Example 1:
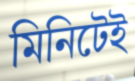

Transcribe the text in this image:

মিনিটেই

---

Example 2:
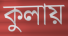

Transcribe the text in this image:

কুলায়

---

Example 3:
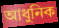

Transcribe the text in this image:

আধুনিক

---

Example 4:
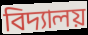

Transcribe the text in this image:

বিদ্যালয়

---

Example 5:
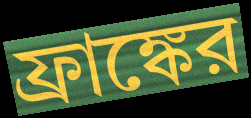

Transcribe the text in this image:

ফ্রাঙ্কের